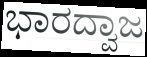
ಭಾರದ್ವಾಜ